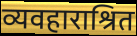
व्यवहाराश्रित